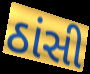
ઠાંસી